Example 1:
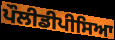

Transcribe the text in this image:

ਪੌਲੀਡੀਪੀਸਿਆ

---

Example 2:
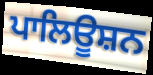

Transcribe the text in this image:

ਪਾਲਿਊਸ਼ਨ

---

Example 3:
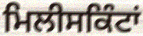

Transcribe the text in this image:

ਮਿਲੀਸਕਿੰਟਾਂ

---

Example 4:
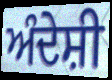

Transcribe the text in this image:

ਅੰਦੇਸ਼ੀ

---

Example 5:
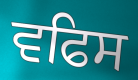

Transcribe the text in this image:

ਵਫਿਸ